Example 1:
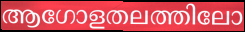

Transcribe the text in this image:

ആഗോളതലത്തിലോ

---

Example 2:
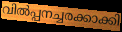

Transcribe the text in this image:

വിൽപ്പനച്ചരക്കാക്കി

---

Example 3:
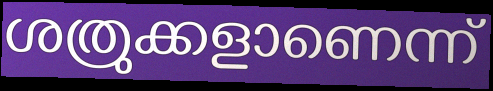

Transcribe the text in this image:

ശത്രുക്കളാണെന്ന്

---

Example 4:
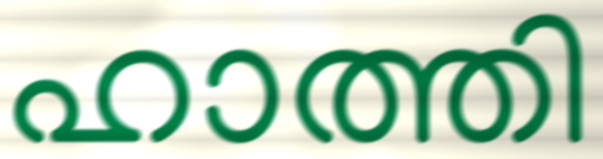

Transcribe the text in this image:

ഹാത്തി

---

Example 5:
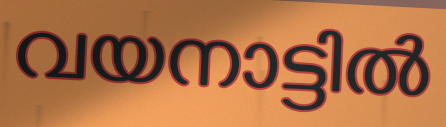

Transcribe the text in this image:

വയനാട്ടിൽ